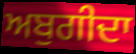
ਅਬੁਗੀਦਾ